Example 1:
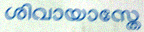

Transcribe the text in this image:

ശിവായാസ്തേ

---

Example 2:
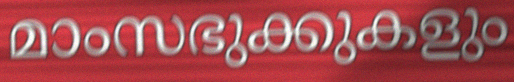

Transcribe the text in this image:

മാംസഭുക്കുകളും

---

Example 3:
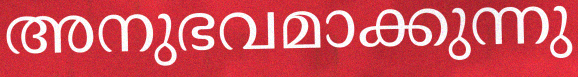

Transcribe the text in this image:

അനുഭവമാക്കുന്നു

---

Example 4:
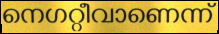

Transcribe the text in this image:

നെഗറ്റീവാണെന്ന്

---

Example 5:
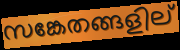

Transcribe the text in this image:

സങ്കേതങ്ങളില്